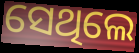
ସେଥିଲେ